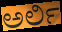
ಅರ್ಲಿ